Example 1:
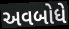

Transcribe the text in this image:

અવબોધે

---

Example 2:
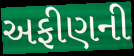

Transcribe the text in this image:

અફીણની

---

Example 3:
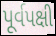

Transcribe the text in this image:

પૂર્વપક્ષી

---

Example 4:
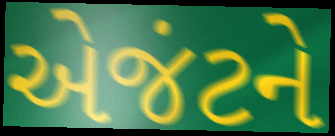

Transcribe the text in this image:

એજંટને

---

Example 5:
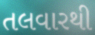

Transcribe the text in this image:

તલવારથી